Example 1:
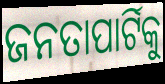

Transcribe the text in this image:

ଜନତାପାର୍ଟିକୁ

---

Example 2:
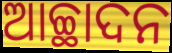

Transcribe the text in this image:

ଆଚ୍ଛାଦନ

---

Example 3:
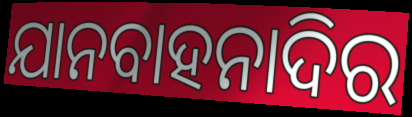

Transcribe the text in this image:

ଯାନବାହନାଦିର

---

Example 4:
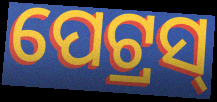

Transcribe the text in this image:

ପେଟ୍ରସ୍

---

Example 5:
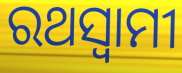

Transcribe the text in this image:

ରଥସ୍ୱାମୀ